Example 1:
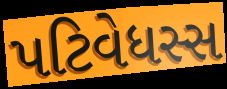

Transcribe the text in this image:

પટિવેધસ્સ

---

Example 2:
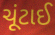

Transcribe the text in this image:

ચૂંટાઈ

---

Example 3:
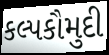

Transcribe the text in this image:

કલ્પકૌમુદી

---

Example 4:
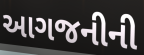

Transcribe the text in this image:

આગજનીની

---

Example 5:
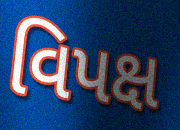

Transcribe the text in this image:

વિપક્ષ